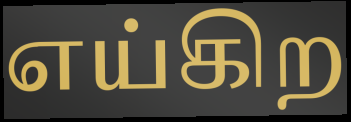
எய்கிற